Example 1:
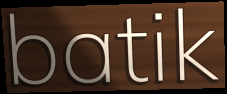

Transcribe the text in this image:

batik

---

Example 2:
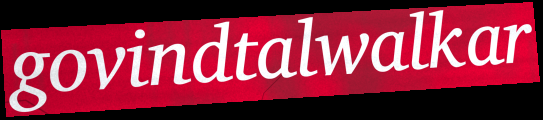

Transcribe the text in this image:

govindtalwalkar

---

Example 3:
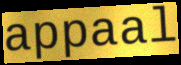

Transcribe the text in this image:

appaal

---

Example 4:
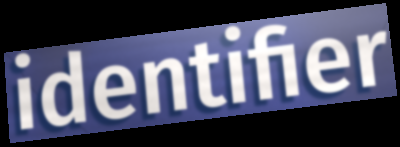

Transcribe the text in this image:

identifier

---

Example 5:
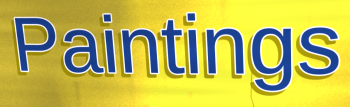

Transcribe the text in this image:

Paintings